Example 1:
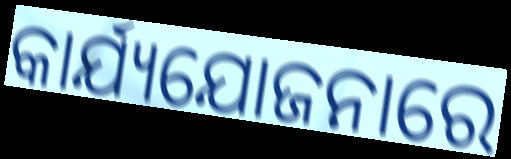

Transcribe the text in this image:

କାର୍ଯ୍ୟଯୋଜନାରେ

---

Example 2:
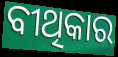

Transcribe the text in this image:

ବୀଥିକାର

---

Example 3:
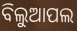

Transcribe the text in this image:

ବିଲୁଆପଲ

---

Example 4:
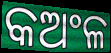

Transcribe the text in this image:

କଅଂଳ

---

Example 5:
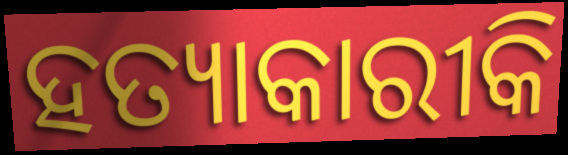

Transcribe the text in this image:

ହତ୍ୟାକାରୀକି